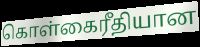
கொள்கைரீதியான